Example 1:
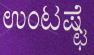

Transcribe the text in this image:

ಉಂಟಷ್ಟೆ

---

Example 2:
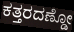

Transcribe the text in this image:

ಕತ್ತರದಣ್ಡೋ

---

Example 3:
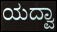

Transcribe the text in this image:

ಯದ್ವಾ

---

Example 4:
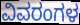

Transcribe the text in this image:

ವಿವರಂಗಳ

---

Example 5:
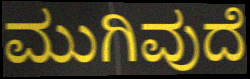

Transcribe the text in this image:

ಮುಗಿವುದೆ